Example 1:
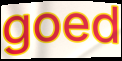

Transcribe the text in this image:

goed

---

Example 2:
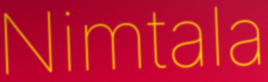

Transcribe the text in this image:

Nimtala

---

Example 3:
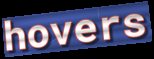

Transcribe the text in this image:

hovers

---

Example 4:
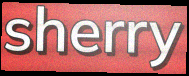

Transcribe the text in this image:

sherry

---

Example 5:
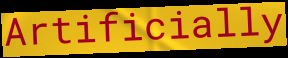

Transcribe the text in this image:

Artificially